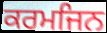
ਕਰਮਜਿਨ